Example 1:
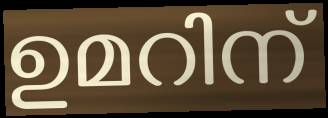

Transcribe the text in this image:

ഉമറിന്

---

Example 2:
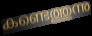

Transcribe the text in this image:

കണ്ടെത്തുന്നു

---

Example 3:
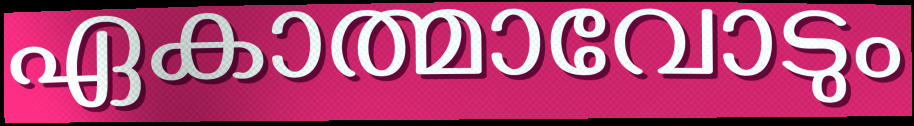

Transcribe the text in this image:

ഏകാത്മാവോടും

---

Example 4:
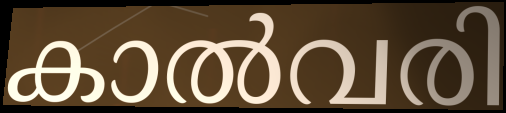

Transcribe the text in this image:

കാൽവരി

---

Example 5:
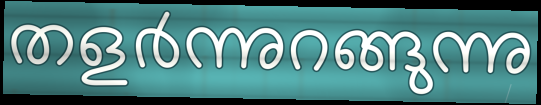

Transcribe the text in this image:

തളർന്നുറങ്ങുന്നു